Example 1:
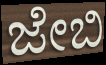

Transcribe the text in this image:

ಜೇಬಿ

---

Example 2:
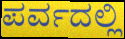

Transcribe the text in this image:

ಪರ್ವದಲ್ಲಿ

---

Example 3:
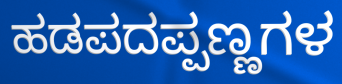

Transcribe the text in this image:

ಹಡಪದಪ್ಪಣ್ಣಗಳ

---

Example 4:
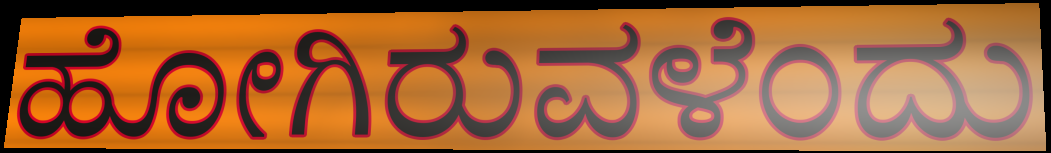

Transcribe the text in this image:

ಹೋಗಿರುವಳೆಂದು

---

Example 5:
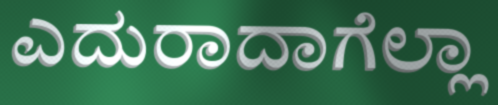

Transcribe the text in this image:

ಎದುರಾದಾಗೆಲ್ಲಾ